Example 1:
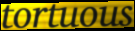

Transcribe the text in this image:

tortuous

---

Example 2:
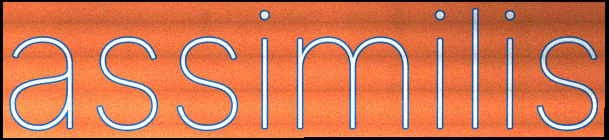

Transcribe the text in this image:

assimilis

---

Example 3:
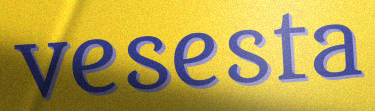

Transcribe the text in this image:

vesesta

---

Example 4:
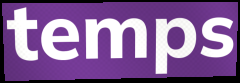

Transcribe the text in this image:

temps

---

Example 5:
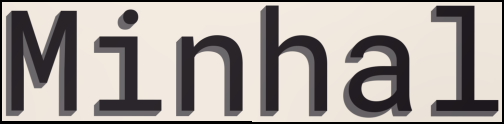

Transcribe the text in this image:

Minhal